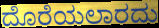
ದೊರೆಯಲಾರದು